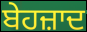
ਬੇਹਜ਼ਾਦ